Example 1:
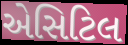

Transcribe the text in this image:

એસિટિલ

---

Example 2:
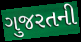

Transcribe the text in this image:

ગુજરતની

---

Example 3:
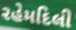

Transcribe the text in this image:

રહેમદિલી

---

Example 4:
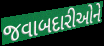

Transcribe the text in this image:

જવાબદારીઓને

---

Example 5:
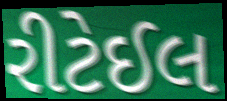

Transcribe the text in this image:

રીટેઈલ